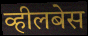
व्हीलबेस